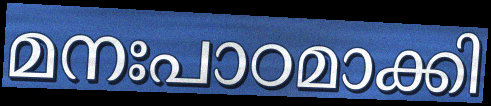
മനഃപാഠമാക്കി